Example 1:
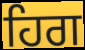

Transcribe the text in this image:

ਹਿਗ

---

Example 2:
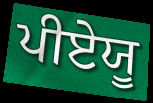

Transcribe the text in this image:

ਪੀਏਯੂ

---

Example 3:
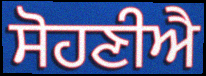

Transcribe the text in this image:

ਸੋਹਣੀਐ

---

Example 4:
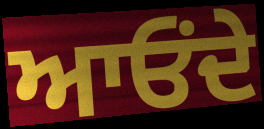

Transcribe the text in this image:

ਆਓਂਦੇ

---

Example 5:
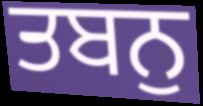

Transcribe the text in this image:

ਤਬਨੁ